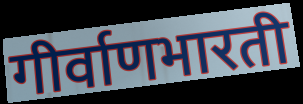
गीर्वाणभारती